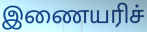
இணையரிச்